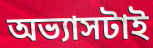
অভ্যাসটাই